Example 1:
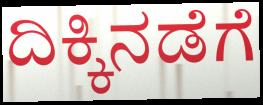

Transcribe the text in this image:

ದಿಕ್ಕಿನಡೆಗೆ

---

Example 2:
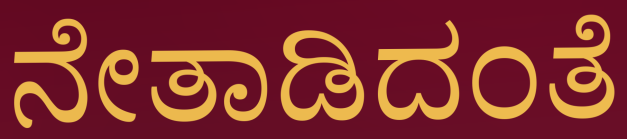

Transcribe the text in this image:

ನೇತಾಡಿದಂತೆ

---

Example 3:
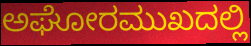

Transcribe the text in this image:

ಅಘೋರಮುಖದಲ್ಲಿ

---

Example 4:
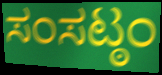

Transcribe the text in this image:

ಸಂಸಟ್ಠಂ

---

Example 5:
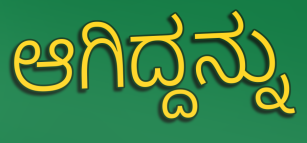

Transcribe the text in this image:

ಆಗಿದ್ದನ್ನು